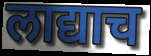
लाद्याच